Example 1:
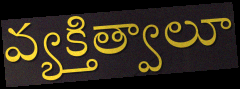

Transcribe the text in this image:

వ్యక్తిత్వాలూ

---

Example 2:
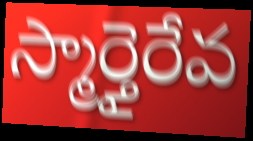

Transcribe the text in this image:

స్మార్తైరేవ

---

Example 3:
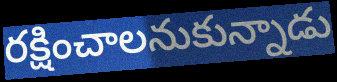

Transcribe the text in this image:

రక్షించాలనుకున్నాడు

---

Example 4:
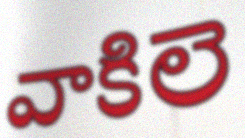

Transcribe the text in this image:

వాకిలె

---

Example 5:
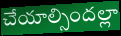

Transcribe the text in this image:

చేయాల్సిందల్లా